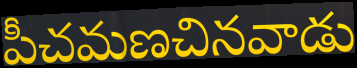
పీచమణచినవాడు